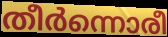
തീർന്നൊരീ